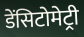
डेंसिटोमेट्री